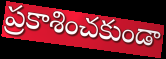
ప్రకాశించకుండా